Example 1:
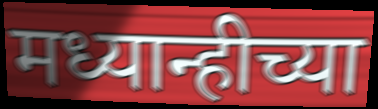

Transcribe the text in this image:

मध्यान्हीच्या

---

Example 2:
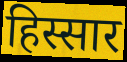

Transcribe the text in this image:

हिस्सार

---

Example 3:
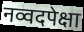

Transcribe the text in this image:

नव्वदपेक्षा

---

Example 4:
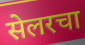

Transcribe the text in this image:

सेलरचा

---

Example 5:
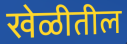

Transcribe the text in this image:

खेळीतील